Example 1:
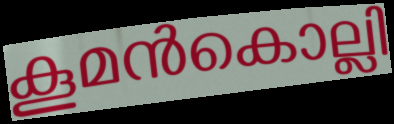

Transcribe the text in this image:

കൂമൻകൊല്ലി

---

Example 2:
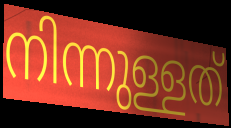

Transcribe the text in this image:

നിന്നുള്ളത്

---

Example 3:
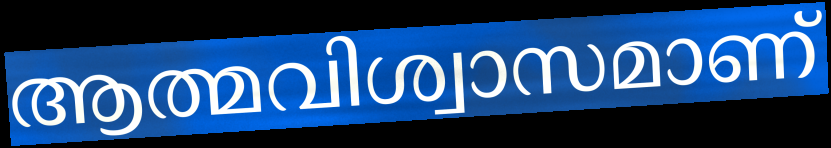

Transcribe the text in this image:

ആത്മവിശ്വാസമാണ്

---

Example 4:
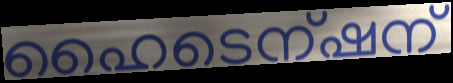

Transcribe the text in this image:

ഹൈടെന്ഷന്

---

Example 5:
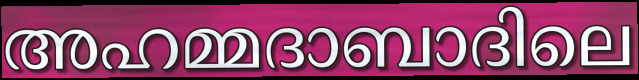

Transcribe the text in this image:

അഹമ്മദാബാദിലെ